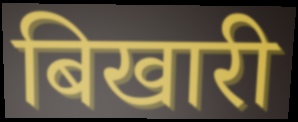
बिखारी